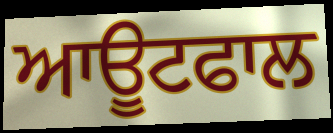
ਆਊਟਫਾਲ